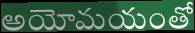
అయోమయంతో